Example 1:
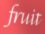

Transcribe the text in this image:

fruit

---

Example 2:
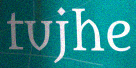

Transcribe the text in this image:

tujhe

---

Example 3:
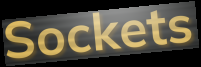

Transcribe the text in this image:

Sockets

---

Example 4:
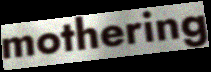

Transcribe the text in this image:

mothering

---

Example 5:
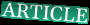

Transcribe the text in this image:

ARTICLE